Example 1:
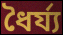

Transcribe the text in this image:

ধৈৰ্য্য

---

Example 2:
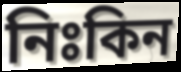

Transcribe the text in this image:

নিঃকিন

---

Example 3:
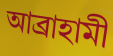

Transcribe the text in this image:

আব্ৰাহামী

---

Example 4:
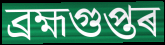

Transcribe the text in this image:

ব্ৰহ্মগুপ্তৰ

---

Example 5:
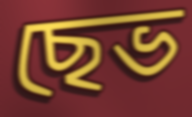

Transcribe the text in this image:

ছেভ